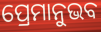
ପ୍ରେମାନୁଭବ